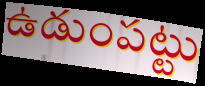
ఉడుంపట్టు